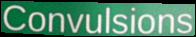
Convulsions